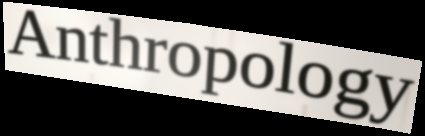
Anthropology